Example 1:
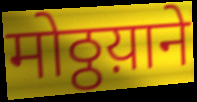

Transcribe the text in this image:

मोठ्ठय़ाने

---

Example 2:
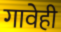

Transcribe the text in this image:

गावेही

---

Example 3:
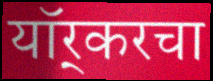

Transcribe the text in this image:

यॉर्करचा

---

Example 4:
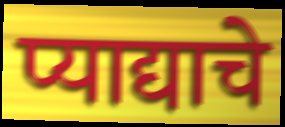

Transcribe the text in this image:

प्याद्याचे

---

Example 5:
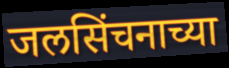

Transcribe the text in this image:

जलसिंचनाच्या